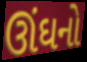
ઊંઘનો